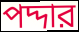
পদ্দার